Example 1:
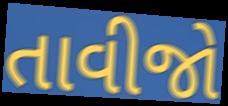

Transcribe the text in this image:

તાવીજો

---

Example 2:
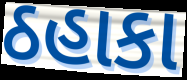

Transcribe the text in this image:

ઠહાકા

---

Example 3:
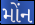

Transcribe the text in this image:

મોંન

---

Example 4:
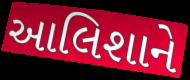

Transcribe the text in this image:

આલિશાને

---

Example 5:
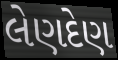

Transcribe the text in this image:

લેણદેણ